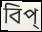
বিপ্